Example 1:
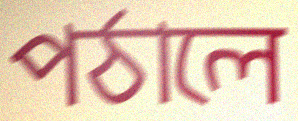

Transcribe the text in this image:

পঠালে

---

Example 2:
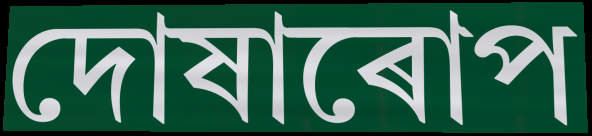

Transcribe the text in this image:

দোষাৰোপ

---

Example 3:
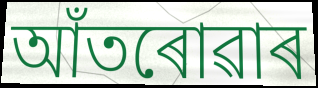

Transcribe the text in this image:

আঁতৰোৱাৰ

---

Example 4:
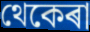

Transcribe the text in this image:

থেকেৰা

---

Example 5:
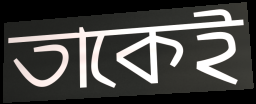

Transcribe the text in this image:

তাকেই